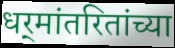
धर्मांतरितांच्या